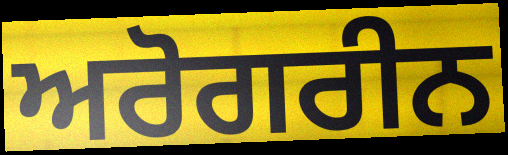
ਅਰੋਗਰੀਨ